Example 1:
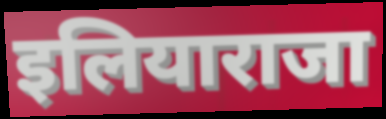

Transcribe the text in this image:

इलियाराजा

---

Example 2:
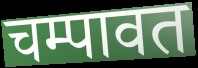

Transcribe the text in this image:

चम्पावत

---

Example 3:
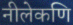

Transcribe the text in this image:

नीलेकणि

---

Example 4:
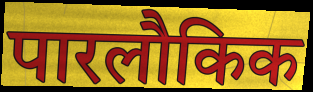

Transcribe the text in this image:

पारलौकिक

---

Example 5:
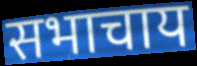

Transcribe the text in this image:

सभाचाय